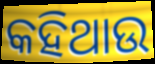
କହିଥାଉ